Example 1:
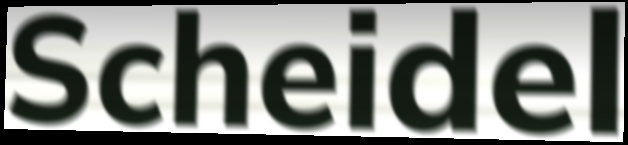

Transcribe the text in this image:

Scheidel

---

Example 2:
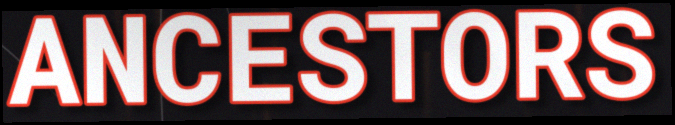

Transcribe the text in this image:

ANCESTORS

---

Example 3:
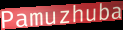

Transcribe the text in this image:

Pamuzhuba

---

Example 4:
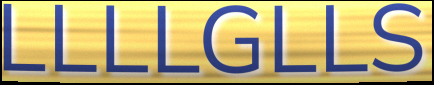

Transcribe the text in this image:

LLLLGLLS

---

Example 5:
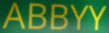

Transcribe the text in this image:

ABBYY